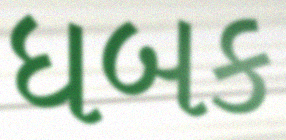
ધબક